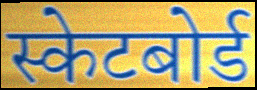
स्केटबोर्ड